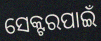
ସେକ୍ଟରପାଇଁ